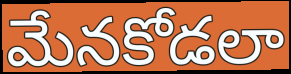
మేనకోడలా